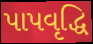
પાપવૃદ્ધિ